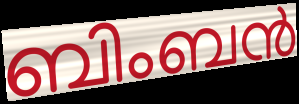
ബിംബൻ